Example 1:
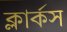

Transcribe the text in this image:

ক্লার্কস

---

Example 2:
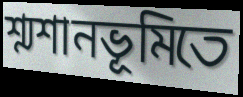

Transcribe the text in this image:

শ্মশানভূমিতে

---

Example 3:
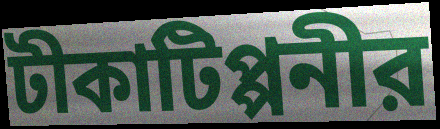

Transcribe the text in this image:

টীকাটিপ্পনীর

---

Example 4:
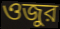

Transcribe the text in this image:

ওজুর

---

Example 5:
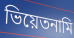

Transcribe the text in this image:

ভিয়েতনামি